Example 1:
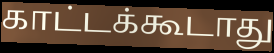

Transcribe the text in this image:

காட்டக்கூடாது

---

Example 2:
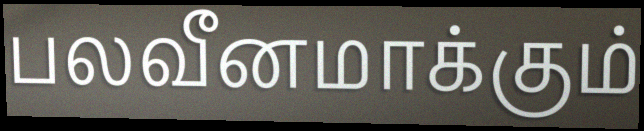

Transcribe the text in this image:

பலவீனமாக்கும்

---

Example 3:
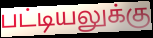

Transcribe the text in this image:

பட்டியலுக்கு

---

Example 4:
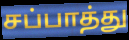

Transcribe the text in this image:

சப்பாத்து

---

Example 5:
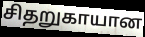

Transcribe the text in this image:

சிதறுகாயான